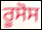
ਰੂਸੋਸ